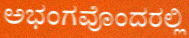
ಅಭಂಗವೊಂದರಲ್ಲಿ